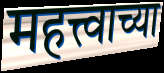
महत्त्वाच्या